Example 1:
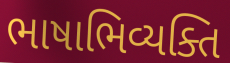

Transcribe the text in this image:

ભાષાભિવ્યક્તિ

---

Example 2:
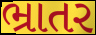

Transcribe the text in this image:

ભ્રાતર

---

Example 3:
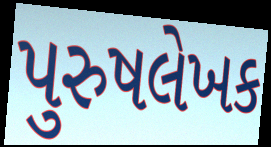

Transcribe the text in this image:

પુરુષલેખક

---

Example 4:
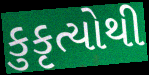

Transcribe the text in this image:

કુકૃત્યોથી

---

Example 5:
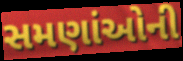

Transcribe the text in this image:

સમણાંઓની